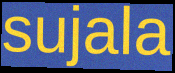
sujala